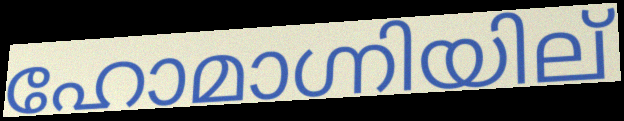
ഹോമാഗ്നിയില്